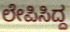
ಲೇಪಿಸಿದ್ದ